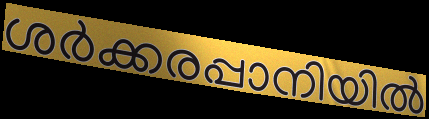
ശർക്കരപ്പാനിയിൽ